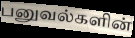
பனுவல்களின்